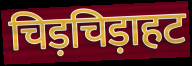
चिड़चिड़ाहट